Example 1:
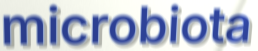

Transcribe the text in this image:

microbiota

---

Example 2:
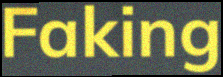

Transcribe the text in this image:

Faking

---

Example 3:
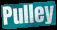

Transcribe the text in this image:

Pulley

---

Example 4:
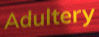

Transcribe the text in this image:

Adultery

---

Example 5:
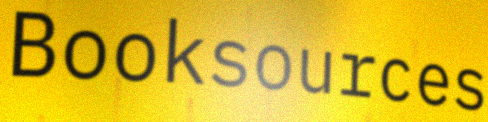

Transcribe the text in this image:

Booksources